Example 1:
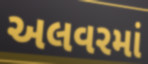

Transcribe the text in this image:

અલવરમાં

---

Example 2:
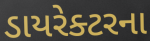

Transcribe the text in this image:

ડાયરેક્ટરના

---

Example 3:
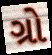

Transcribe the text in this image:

ગ્રો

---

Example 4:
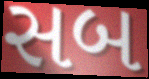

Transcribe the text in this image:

સબ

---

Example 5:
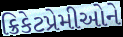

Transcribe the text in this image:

ક્રિકેટપ્રેમીઓને